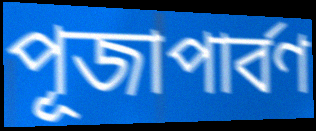
পূজাপার্বণ